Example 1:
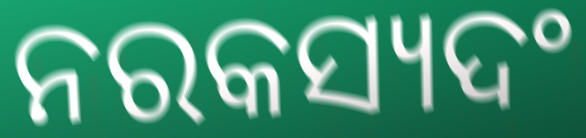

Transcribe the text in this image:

ନରକସ୍ୟଦଂ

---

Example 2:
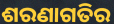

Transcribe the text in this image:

ଶରଣାଗତିର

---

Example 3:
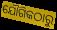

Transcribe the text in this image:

ଯୌଗିକଠାରୁ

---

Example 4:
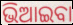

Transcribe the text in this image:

ଭିଆଇବା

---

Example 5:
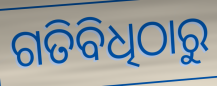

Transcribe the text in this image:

ଗତିବିଧିଠାରୁ